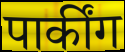
पार्कींग